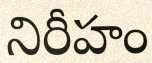
నిరీహం